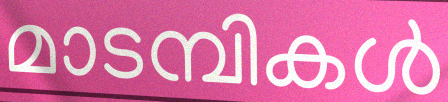
മാടമ്പികൾ